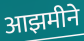
आझमीने